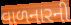
વાળનારની